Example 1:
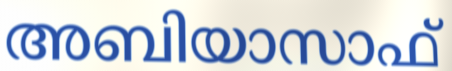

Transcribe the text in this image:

അബിയാസാഫ്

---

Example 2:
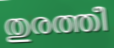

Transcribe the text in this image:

തുരത്തീ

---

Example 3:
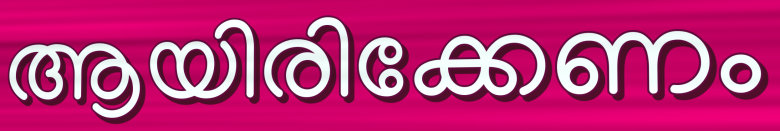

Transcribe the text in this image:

ആയിരിക്കേണം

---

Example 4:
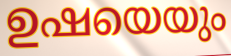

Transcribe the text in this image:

ഉഷയെയും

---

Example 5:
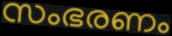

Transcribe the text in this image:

സംഭരണം